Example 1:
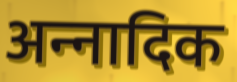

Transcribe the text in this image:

अन्नादिक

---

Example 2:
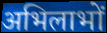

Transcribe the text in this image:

अभिलाभों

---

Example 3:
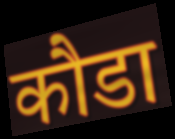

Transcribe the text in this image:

कौडा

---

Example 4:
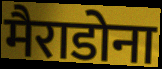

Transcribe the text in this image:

मैराडोना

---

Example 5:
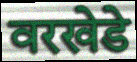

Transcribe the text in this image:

वरखेडे